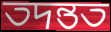
তদন্তত